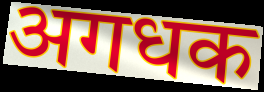
अगधक